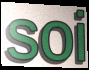
soi